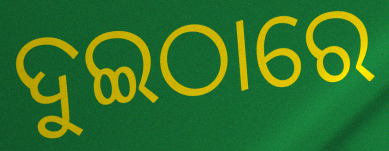
ଦୁଇଠାରେ